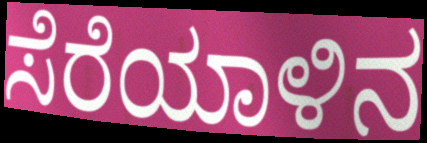
ಸೆರೆಯಾಳಿನ